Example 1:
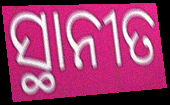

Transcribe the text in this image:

ସ୍ଥାନୀତ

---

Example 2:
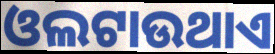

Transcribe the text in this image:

ଓଲଟାଉଥାଏ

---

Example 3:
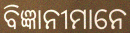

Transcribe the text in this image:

ବିଜ୍ଞାନୀମାନେ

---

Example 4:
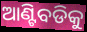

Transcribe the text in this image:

ଆଣ୍ଟିବଡିକୁ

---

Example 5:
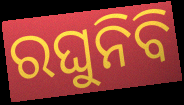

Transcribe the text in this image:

ରଘୁନିବି